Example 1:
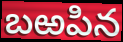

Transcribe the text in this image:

బఱపిన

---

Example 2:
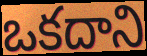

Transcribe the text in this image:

ఒకదాని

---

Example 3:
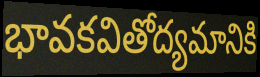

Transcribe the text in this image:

భావకవితోద్యమానికి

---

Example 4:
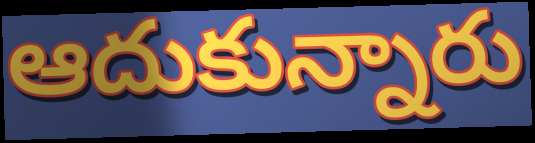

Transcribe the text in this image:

ఆదుకున్నారు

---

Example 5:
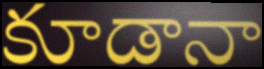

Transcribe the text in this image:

కూడానా